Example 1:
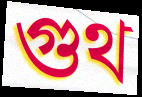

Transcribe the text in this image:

গুথ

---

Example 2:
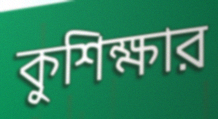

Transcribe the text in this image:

কুশিক্ষার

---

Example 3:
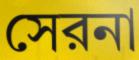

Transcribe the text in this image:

সেরনা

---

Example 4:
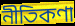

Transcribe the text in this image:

নীতিকণা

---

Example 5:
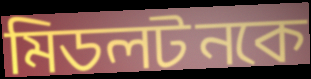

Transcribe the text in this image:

মিডলটনকে